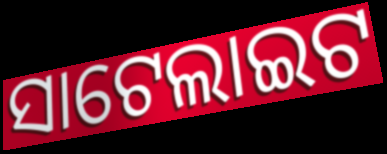
ସାଟେଲାଇଟ